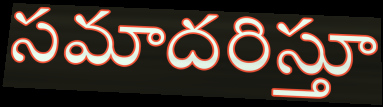
సమాదరిస్తూ